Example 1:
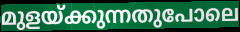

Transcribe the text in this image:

മുളയ്ക്കുന്നതുപോലെ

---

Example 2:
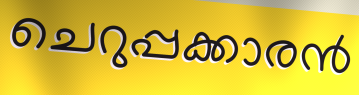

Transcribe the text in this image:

ചെറുപ്പക്കാരൻ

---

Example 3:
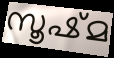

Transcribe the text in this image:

സൂഷ്മ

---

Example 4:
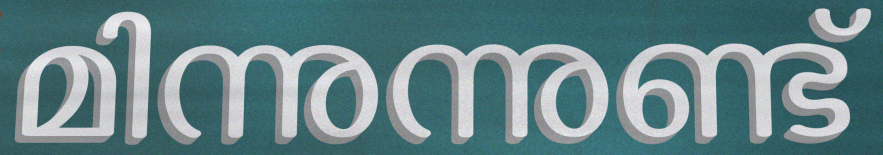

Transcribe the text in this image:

മിന്നുന്നുണ്ട്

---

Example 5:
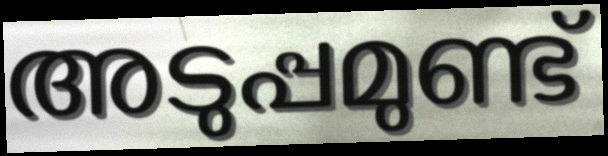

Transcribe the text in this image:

അടുപ്പമുണ്ട്